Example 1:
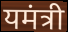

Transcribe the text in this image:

यमंत्री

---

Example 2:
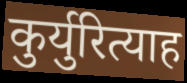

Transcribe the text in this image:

कुर्युरित्याह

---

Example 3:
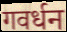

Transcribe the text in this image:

गवर्धन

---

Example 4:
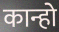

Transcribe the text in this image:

कान्हो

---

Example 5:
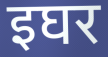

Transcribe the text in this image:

इघर